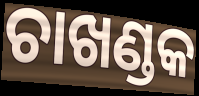
ଚାଖଣ୍ଡକ